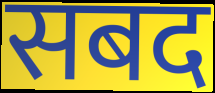
सबद